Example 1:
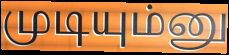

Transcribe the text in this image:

முடியும்னு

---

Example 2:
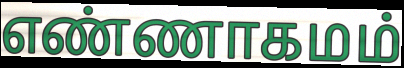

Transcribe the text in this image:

எண்ணாகமம்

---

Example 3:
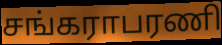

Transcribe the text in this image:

சங்கராபரணி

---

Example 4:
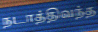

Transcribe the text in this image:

நடாத்திவந்த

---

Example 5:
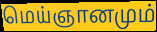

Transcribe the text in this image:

மெய்ஞானமும்